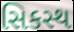
સિકસ્થ